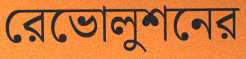
রেভোলুশনের